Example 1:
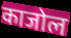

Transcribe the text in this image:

काजोल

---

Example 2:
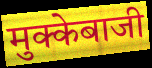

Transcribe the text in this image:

मुक्केबाजी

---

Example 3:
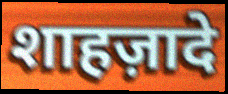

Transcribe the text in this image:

शाहज़ादे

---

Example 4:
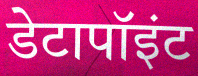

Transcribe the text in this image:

डेटापॉइंट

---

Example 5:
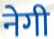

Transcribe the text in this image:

नेगी